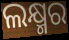
ଲକ୍ଷ୍ମର